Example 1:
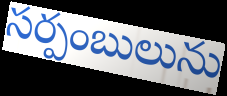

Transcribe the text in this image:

సర్పంబులును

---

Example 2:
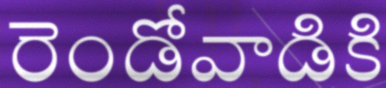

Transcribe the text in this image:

రెండోవాడికి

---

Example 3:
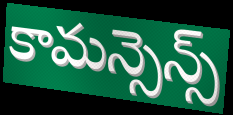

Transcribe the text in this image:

కామన్సెన్స్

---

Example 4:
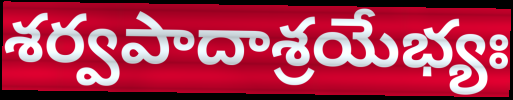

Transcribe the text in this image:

శర్వపాదాశ్రయేభ్యః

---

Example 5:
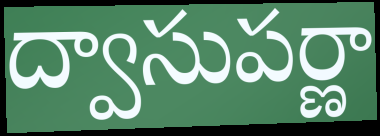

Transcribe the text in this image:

ద్వాసుపర్ణా